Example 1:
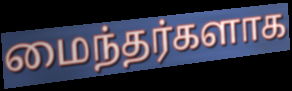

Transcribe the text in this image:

மைந்தர்களாக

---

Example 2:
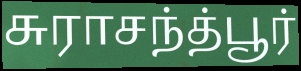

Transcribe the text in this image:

சுராசந்த்பூர்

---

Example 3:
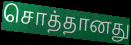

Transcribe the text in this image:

சொத்தானது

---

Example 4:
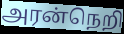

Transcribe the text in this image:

அரன்நெறி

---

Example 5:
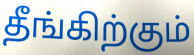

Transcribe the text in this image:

தீங்கிற்கும்